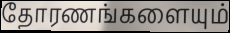
தோரணங்களையும்